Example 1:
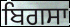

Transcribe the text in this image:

ਬਿਗਸਾ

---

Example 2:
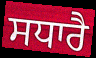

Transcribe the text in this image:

ਸਧਾਰੈ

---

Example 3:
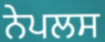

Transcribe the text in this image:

ਨੇਪਲਸ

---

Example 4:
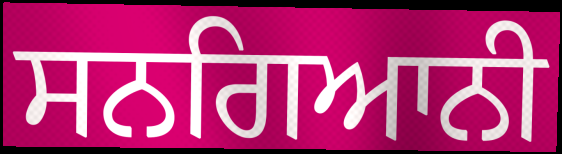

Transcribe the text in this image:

ਸਨਗਿਆਨੀ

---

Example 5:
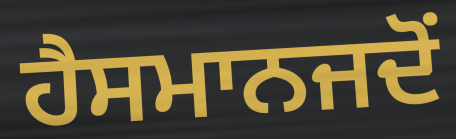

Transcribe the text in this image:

ਹੈਸਮਾਨਜਦੋਂ